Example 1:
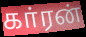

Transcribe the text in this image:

கர்ரன்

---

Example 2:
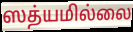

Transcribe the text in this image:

ஸத்யமில்லை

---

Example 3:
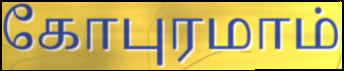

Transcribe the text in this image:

கோபுரமாம்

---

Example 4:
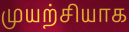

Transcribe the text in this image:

முயற்சியாக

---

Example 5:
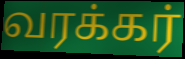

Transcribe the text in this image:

வரக்கர்